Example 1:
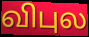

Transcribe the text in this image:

விபுல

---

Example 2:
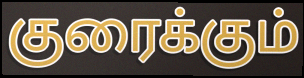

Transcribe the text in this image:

குரைக்கும்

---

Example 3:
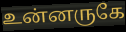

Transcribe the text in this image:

உன்னருகே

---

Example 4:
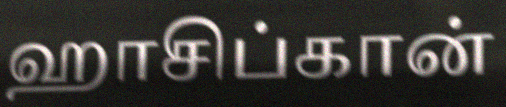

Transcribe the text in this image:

ஹாசிப்கான்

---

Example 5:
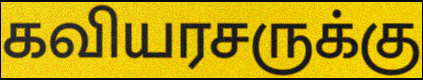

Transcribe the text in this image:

கவியரசருக்கு